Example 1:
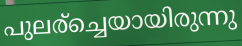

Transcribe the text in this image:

പുലര്ച്ചെയായിരുന്നു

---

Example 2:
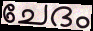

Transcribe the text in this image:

ചേദം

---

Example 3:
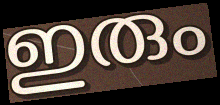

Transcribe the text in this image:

ഇരും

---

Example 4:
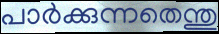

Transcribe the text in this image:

പാർക്കുന്നതെന്തു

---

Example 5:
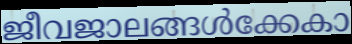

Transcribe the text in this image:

ജീവജാലങ്ങൾക്കേകാ